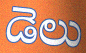
డెలు